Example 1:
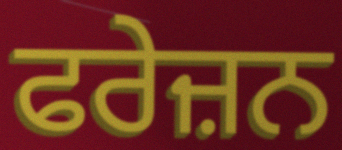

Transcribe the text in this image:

ਫਰੇਜ਼ਨ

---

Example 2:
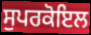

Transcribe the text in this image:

ਸੁਪਰਕੋਇਲ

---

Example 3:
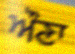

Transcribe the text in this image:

ਔਣਾ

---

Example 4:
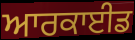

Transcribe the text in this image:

ਆਰਕਾਈਡ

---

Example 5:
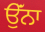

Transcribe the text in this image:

ਉਂੱਨਾ